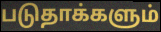
படுதாக்களும்